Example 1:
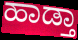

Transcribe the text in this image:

ಹಾಡ್ತಾ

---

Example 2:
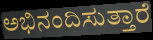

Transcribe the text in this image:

ಅಭಿನಂದಿಸುತ್ತಾರೆ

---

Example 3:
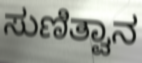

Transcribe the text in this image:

ಸುಣಿತ್ವಾನ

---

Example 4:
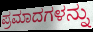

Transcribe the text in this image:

ಪ್ರಮಾದಗಳನ್ನು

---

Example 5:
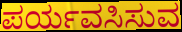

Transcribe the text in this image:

ಪರ್ಯವಸಿಸುವ